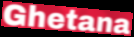
Ghetana